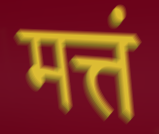
मत्तं